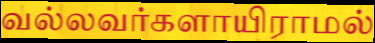
வல்லவர்களாயிராமல்